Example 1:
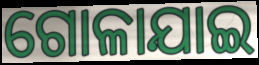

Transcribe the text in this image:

ଗୋଳାଯାଇ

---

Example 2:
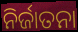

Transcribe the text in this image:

ନିର୍ଜାତନା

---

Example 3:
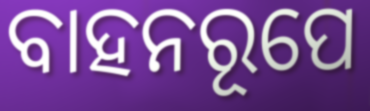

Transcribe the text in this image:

ବାହନରୂପେ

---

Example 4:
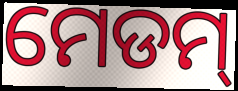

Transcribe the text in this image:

ମେଡମ୍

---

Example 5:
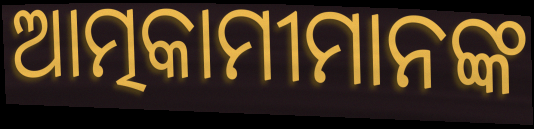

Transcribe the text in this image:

ଆତ୍ମକାମୀମାନଙ୍କ